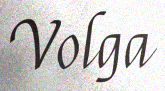
Volga